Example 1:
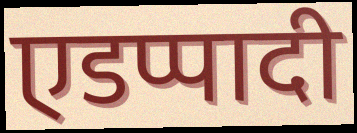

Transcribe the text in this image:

एडप्पादी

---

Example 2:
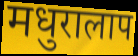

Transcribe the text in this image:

मधुरालाप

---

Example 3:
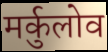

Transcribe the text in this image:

मर्कुलोव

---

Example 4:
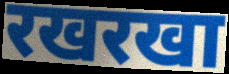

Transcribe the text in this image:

रखरखा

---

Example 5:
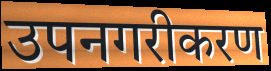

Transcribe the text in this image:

उपनगरीकरण